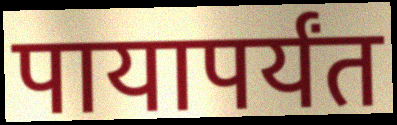
पायापर्यंत